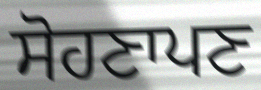
ਸੋਹਣਾਪਣ